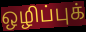
ஒழிப்புக்